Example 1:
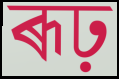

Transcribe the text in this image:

ৰূঢ়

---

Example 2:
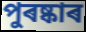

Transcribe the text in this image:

পুৰষ্কাৰ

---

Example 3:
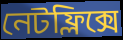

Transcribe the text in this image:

নেটফ্লিক্সে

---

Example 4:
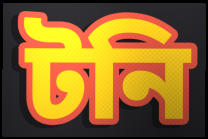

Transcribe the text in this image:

টনি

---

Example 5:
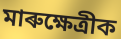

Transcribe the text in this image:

মাৰুক্ষেত্ৰীক